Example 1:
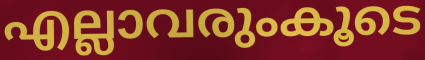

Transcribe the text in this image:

എല്ലാവരുംകൂടെ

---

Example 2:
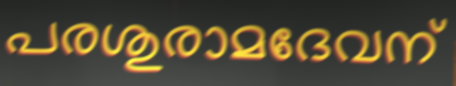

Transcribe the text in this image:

പരശുരാമദേവന്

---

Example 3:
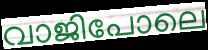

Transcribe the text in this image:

വാജിപോലെ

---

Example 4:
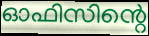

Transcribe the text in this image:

ഓഫിസിന്റെ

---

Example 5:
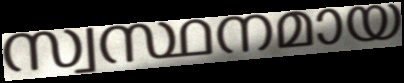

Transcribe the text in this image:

സ്വസ്ഥനമായ